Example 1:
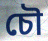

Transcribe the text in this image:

চৌ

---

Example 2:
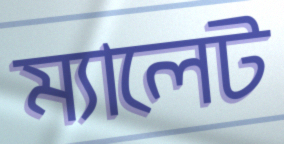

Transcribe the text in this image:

ম্যালেট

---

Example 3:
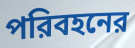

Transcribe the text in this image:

পরিবহনের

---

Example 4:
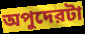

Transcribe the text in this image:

অপুদেরটা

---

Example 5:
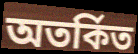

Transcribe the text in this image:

অতর্কিত